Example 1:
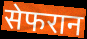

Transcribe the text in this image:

सेफरान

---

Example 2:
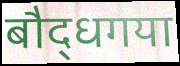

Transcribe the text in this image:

बौद्धगया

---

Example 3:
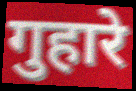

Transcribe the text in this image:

गुहारे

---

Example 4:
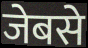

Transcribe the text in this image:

जेबसे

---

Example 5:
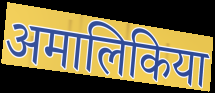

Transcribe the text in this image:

अमालिकिया